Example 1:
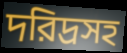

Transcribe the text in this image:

দরিদ্রসহ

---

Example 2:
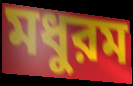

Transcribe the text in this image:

মধুরম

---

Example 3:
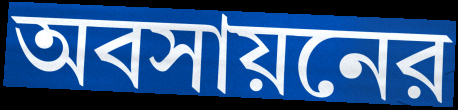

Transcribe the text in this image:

অবসায়নের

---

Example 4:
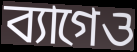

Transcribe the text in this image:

ব্যাগেও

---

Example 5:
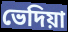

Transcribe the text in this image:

ভেদিয়া